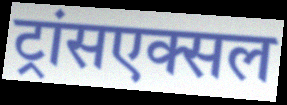
ट्रांसएक्सल